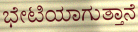
ಭೇಟಿಯಾಗುತ್ತಾನೆ